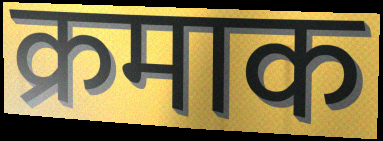
क्रमाक